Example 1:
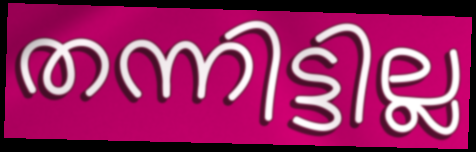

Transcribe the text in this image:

തന്നിട്ടില്ല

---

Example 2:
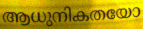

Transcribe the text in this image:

ആധുനികതയോ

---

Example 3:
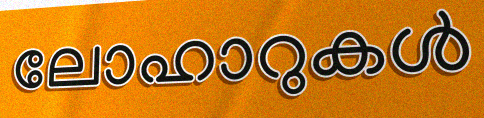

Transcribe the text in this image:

ലോഹാറുകൾ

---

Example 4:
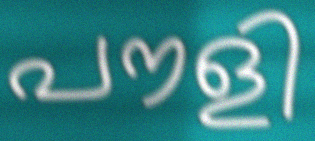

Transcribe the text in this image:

പൗളി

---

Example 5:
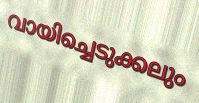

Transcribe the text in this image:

വായിച്ചെടുക്കലും